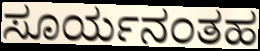
ಸೂರ್ಯನಂತಹ